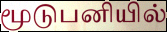
மூடுபனியில்